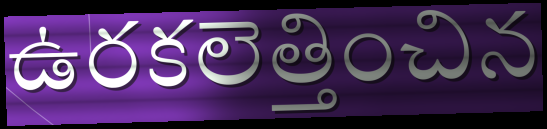
ఉరకలెత్తించిన